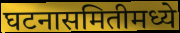
घटनासमितीमध्ये